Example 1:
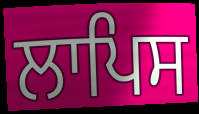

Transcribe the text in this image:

ਲਾਪਿਸ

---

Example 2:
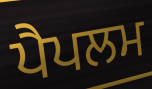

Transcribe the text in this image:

ਪੈਪਲਮ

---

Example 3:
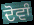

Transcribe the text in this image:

ਦੋਵਾੰ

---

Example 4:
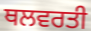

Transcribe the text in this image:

ਥਲਵਰਤੀ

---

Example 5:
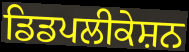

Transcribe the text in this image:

ਡਿਡਪਲੀਕੇਸ਼ਨ